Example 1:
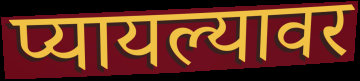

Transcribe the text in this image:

प्यायल्यावर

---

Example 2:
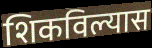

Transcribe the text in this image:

शिकविल्यास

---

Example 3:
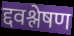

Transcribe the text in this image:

द्दवश्लेषण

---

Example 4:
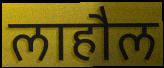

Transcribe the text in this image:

लाहौल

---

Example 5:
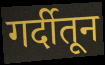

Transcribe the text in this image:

गर्दीतून